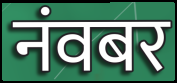
नंवबर